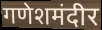
गणेशमंदीर